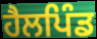
ਹੈਲਪਿੰਡ